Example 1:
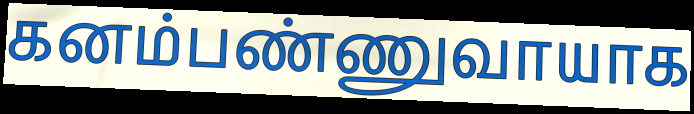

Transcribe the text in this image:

கனம்பண்ணுவாயாக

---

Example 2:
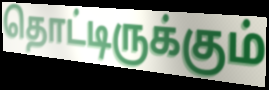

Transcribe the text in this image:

தொட்டிருக்கும்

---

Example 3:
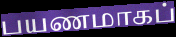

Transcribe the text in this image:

பயணமாகப்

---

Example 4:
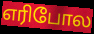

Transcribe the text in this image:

எரிபோல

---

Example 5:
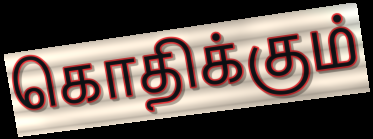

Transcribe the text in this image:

கொதிக்கும்